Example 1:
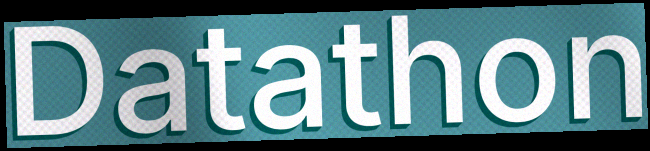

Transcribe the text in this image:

Datathon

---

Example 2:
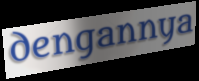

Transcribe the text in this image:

dengannya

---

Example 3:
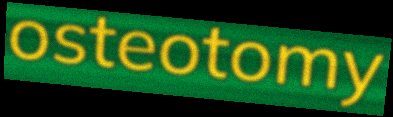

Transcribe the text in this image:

osteotomy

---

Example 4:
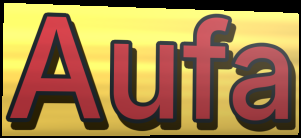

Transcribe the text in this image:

Aufa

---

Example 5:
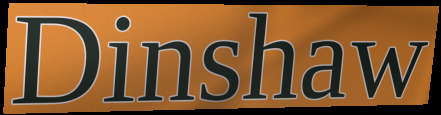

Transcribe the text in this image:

Dinshaw